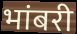
भांबरी